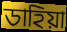
ডাহিয়া